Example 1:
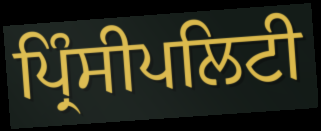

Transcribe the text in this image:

ਪ੍ਰਿੰਸੀਪਲਿਟੀ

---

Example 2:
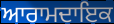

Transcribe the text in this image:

ਆਰਾਮਦਾਇਕ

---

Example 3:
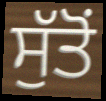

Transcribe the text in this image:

ਸੁੱਤੋਂ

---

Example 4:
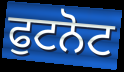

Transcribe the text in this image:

ਫੁਟਨੋਟ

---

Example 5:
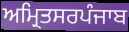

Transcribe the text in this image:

ਅਮ੍ਰਿਤਸਰਪੰਜਾਬ